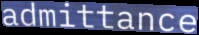
admittance